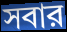
সবার